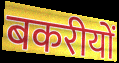
बकरीयों